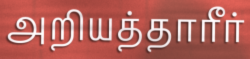
அறியத்தாரீர்